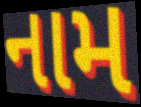
નામ